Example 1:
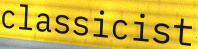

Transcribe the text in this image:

classicist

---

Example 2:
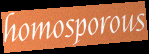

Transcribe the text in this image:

homosporous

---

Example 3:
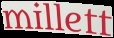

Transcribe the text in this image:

millett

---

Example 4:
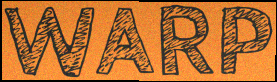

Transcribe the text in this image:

WARP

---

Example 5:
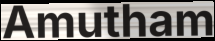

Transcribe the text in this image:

Amutham